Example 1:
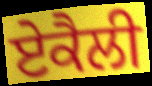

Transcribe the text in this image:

ਏਕੈਲੀ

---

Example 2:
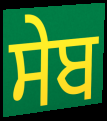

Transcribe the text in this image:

ਸੇਬ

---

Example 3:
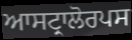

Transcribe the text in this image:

ਆਸਟ੍ਰਾਲੋਰਪਸ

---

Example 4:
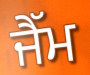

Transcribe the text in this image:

ਜੈੱਮ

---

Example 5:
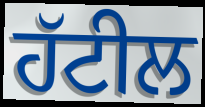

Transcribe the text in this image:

ਹੱਟੀਲ